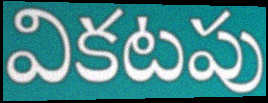
వికటపు